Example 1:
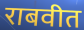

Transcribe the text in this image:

राबवीत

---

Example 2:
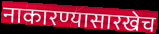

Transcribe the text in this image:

नाकारण्यासारखेच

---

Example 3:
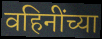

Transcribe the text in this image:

वहिनींच्या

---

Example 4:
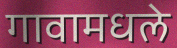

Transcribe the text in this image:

गावामधले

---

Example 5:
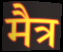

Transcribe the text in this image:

मैत्र